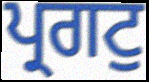
ਪ੍ਰਗਟੁ